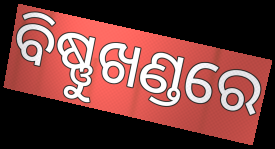
ବିଷ୍ଣୁଖଣ୍ଡରେ